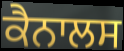
ਕੈਨਾਲਸ